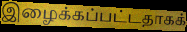
இழைக்கப்பட்டதாகக்